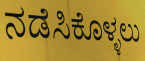
ನಡೆಸಿಕೊಳ್ಳಲು